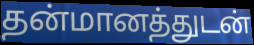
தன்மானத்துடன்